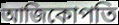
আজিকোপতি